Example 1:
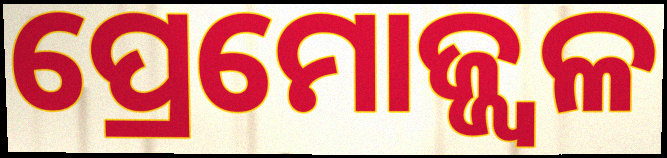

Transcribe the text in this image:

ପ୍ରେମୋଜ୍ଜ୍ୱଳ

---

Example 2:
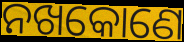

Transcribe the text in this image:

ନଖକୋଣେ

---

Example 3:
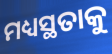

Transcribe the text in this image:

ମଧ୍ୟସ୍ଥତାକୁ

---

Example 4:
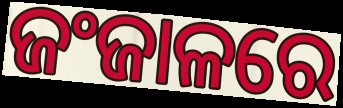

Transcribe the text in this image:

ଜଂଜାଳରେ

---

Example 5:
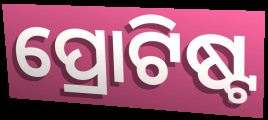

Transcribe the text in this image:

ପ୍ରୋଟିଷ୍ଟ